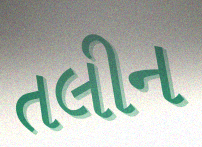
તલીન